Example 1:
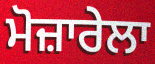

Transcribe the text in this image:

ਮੋਜ਼ਾਰੇਲਾ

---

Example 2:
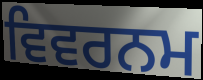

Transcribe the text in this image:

ਵਿਵਰਨਮ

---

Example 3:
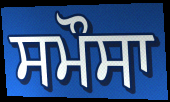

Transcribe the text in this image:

ਸਮੌਸਾ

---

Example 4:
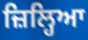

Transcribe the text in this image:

ਜ਼ਿਲ੍ਹਿਆ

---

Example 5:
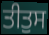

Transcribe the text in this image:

ਤੀਤੁਸ